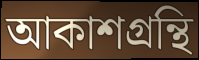
আকাশগ্রন্থি